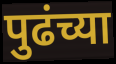
पुढंच्या